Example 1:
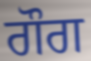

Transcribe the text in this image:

ਗੌਗ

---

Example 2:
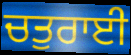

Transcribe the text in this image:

ਚਤੁਰਾਈ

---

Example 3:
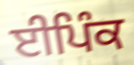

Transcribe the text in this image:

ਈਪਿੰਕ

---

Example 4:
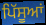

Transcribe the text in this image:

ਪਿੱਸੂਆਂ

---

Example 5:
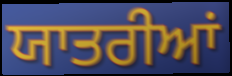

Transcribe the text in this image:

ਯਾਤਰੀਆਂ